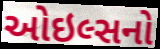
ઓઇલ્સનો